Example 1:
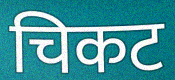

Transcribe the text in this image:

चिकट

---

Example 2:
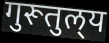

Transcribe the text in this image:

गुरूतुल्य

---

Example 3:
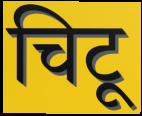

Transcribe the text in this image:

चिटू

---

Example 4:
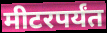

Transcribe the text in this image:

मीटरपर्यंत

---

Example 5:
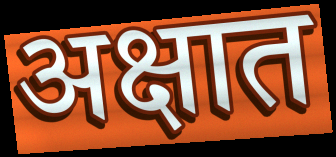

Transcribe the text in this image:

अक्षात